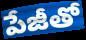
పేజీతో